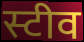
स्टीव